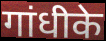
गांधीके